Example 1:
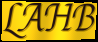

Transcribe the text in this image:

LAHB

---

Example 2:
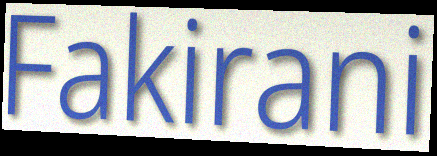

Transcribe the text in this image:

Fakirani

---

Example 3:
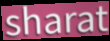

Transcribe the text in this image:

sharat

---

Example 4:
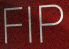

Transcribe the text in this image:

FIP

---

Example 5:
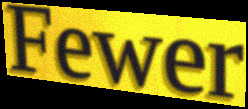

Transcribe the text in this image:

Fewer